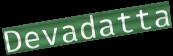
Devadatta